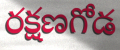
రక్షణగోడ